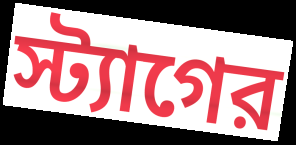
স্ট্যাগের